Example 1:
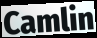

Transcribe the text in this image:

Camlin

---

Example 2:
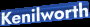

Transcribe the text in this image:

Kenilworth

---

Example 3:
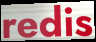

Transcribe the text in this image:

redis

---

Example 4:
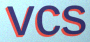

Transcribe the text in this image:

vcs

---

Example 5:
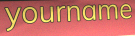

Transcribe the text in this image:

yourname